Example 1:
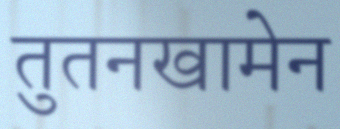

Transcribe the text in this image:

तुतनखामेन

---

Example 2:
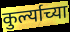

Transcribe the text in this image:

कुर्ल्याच्या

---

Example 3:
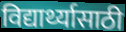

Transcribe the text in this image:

विद्यार्थ्यासाठी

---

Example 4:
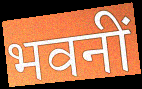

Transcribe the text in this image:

भवनीं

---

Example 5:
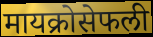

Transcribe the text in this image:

मायक्रोसेफली